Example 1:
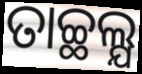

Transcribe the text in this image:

ତାଚ୍ଛଲ୍ଯ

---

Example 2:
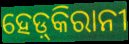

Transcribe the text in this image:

ହେଡ଼୍‌କିରାନୀ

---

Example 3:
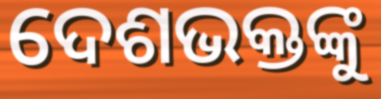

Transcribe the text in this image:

ଦେଶଭକ୍ତଙ୍କୁ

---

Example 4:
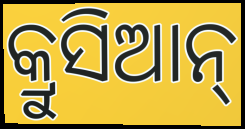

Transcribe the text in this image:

କ୍ରୁସିଆନ୍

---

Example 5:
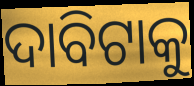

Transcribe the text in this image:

ଦାବିଟାକୁ